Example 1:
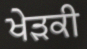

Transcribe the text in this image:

ਖੇੜਕੀ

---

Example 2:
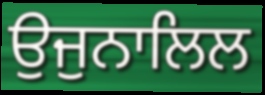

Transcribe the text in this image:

ਉਜੁਨਾਲਿਲ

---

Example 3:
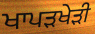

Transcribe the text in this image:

ਖਾਪੜਖੇੜੀ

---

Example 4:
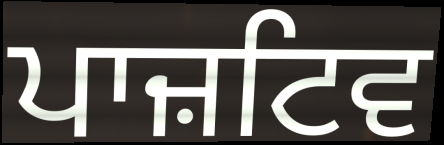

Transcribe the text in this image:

ਪਾਜ਼ਟਿਵ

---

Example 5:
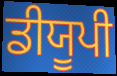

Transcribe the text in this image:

ਡੀਯੂਪੀ